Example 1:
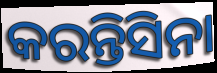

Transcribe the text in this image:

କରନ୍ତିସିନା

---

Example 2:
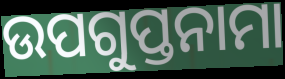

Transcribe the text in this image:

ଉପଗୁପ୍ତନାମା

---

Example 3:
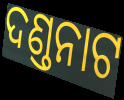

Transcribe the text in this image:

ଦଣ୍ଡନାଟ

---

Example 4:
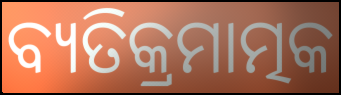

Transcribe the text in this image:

ବ୍ୟତିକ୍ରମାତ୍ମକ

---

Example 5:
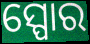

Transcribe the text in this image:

ସ୍ପୋର